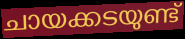
ചായക്കടയുണ്ട്